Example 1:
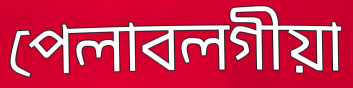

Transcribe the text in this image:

পেলাবলগীয়া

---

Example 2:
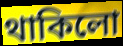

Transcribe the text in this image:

থাকিলো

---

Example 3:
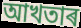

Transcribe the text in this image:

আখতাৰ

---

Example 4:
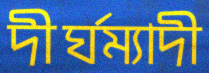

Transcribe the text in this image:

দীৰ্ঘম্যাদী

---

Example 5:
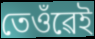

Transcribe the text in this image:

তেওঁৱেই